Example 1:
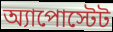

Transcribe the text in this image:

অ্যাপোস্টেট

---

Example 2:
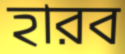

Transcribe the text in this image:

হারব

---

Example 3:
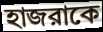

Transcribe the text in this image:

হাজরাকে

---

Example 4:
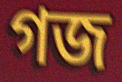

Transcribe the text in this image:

গজ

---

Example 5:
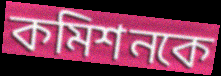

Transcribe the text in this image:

কমিশনকে